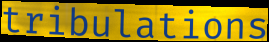
tribulations